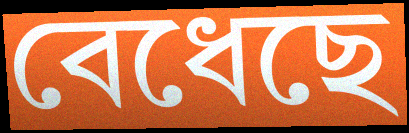
বেধেছে